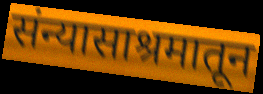
संन्यासाश्रमातून